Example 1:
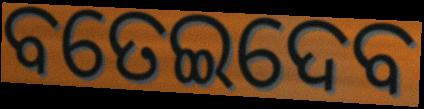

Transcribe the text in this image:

ବତେଇଦେବ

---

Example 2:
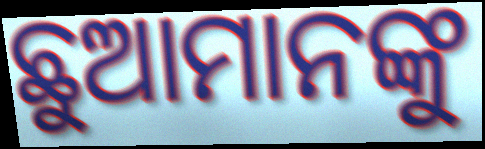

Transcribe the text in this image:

ଛୁଆମାନଙ୍କୁ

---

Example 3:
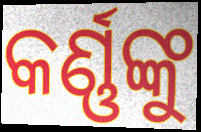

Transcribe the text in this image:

କର୍ଣ୍ଣଙ୍କୁ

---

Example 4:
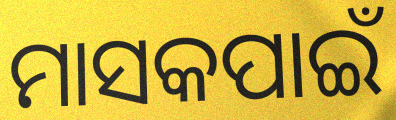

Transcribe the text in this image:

ମାସକପାଇଁ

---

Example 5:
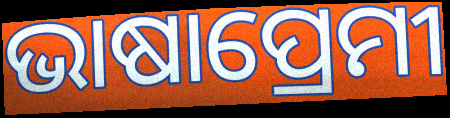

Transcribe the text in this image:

ଭାଷାପ୍ରେମୀ